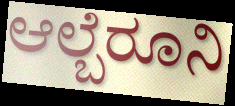
ಆಲ್ಬೆರೂನಿ